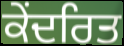
ਕੇਂਦਰਿਤ